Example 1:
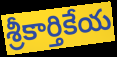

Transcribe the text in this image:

శ్రీకార్తికేయ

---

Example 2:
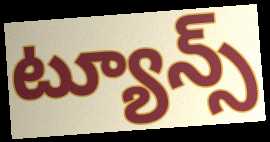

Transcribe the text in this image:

ట్యూన్స్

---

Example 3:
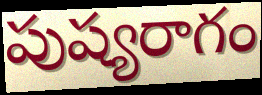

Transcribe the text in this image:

పుష్యరాగం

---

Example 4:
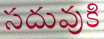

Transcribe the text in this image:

సదువుకి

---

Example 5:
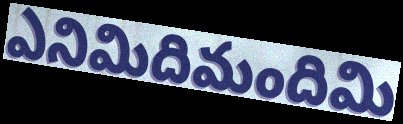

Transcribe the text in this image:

ఎనిమిదిమందిమి